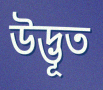
উদ্ভূত